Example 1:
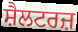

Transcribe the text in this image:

ਸ਼ੈਲਟਰਜ਼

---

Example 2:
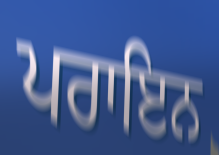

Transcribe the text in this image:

ਪਰਾਇਨ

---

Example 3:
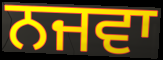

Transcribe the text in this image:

ਨਜਵਾ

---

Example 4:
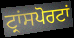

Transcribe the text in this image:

ਟ੍ਰਾਂਸਪੋਰਟਾਂ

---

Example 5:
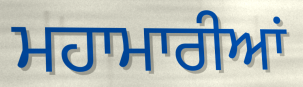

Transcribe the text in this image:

ਮਹਾਮਾਰੀਆਂ